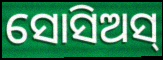
ସୋସିଅସ୍